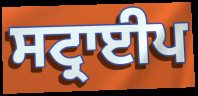
ਸਟ੍ਰਾਈਪ